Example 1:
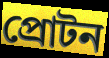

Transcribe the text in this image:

প্রোটন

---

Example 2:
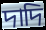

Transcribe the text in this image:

দাদি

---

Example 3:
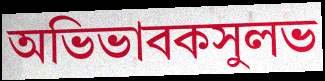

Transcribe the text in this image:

অভিভাবকসুলভ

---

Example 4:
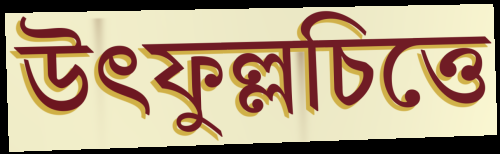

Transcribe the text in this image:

উৎফুল্লচিত্তে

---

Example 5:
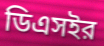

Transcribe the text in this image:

ডিএসইর